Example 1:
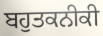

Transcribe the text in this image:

ਬਹੁਤਕਨੀਕੀ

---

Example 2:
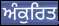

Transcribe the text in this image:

ਅੰਕੁਰਿਤ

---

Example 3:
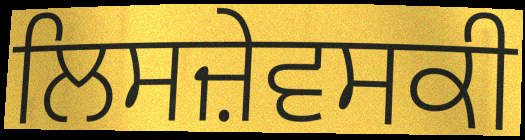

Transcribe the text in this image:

ਲਿਸਜ਼ੇਵਸਕੀ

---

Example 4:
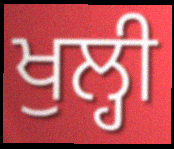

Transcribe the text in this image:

ਖੁਲ੍ਹੀ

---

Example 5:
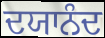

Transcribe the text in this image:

ਦਯਾਨੰਦ